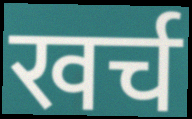
खर्च